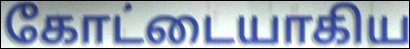
கோட்டையாகிய